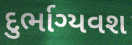
દુર્ભાગ્યવશ